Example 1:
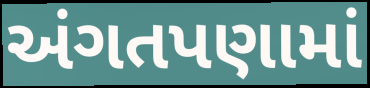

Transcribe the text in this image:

અંગતપણામાં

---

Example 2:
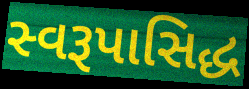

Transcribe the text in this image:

સ્વરૂપાસિદ્ધ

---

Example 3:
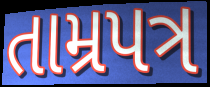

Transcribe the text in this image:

તામ્રપત્ર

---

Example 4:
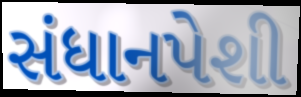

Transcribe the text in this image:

સંધાનપેશી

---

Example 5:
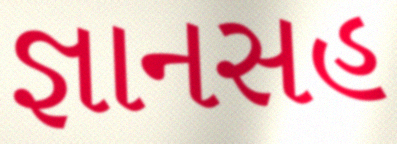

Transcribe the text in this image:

જ્ઞાનસહ